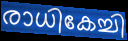
രാധികേച്ചി